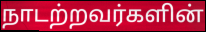
நாடற்றவர்களின்